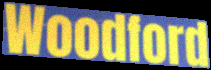
Woodford